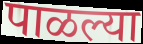
पाळल्या